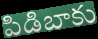
పిడిబాకు